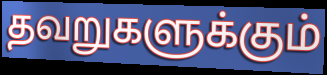
தவறுகளுக்கும்